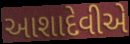
આશાદેવીએ